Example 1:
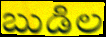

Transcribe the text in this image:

బుడిల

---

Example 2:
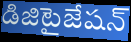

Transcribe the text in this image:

డిజిటైజేషన్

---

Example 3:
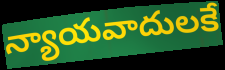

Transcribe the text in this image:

న్యాయవాదులకే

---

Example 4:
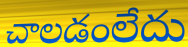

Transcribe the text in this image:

చాలడంలేదు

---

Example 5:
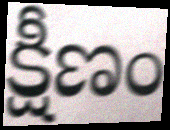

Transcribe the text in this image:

క్షీణం